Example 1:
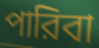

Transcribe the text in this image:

পারিবা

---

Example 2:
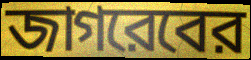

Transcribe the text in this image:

জাগরেবের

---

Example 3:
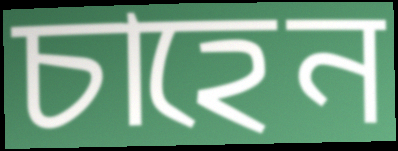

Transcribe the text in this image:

চাহেন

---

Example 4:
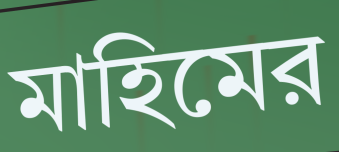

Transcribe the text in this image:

মাহিমের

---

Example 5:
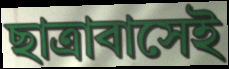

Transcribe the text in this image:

ছাত্রাবাসেই